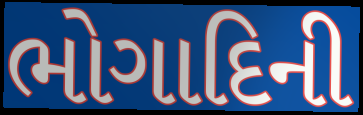
ભોગાદિની